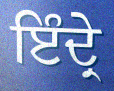
ਇੰਦ੍ਰੇ